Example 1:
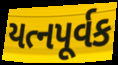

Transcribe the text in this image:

યત્નપૂર્વક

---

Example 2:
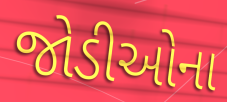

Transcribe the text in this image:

જોડીઓના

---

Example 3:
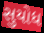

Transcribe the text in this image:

સુયોધ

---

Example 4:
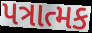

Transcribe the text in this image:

પત્રાત્મક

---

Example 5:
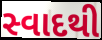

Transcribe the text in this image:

સ્વાદથી